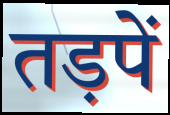
तड़पें